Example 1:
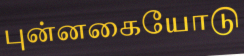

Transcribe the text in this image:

புன்னகையோடு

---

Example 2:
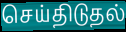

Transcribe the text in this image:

செய்திடுதல்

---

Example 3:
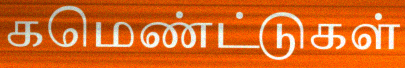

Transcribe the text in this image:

கமெண்ட்டுகள்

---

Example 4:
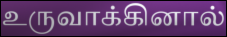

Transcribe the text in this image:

உருவாக்கினால்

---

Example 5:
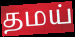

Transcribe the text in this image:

தமய்